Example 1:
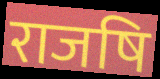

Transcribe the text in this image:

राजषि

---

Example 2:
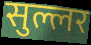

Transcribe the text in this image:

सुल्लर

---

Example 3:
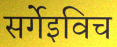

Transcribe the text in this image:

सर्गेइविच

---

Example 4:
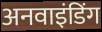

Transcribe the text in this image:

अनवाइंडिंग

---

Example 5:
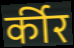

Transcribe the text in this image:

र्कीर